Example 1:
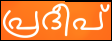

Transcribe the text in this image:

പ്രദീപ്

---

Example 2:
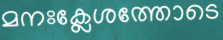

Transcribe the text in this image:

മനഃക്ലേശത്തോടെ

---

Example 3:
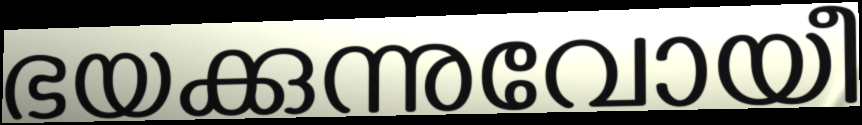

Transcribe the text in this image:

ഭയക്കുന്നുവോയീ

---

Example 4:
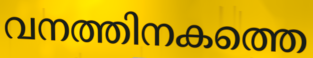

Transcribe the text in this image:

വനത്തിനകത്തെ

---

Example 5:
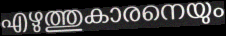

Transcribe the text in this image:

എഴുത്തുകാരനെയും